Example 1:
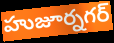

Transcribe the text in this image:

హుజూర్నగర్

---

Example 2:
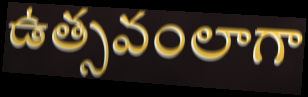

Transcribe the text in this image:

ఉత్సవంలాగా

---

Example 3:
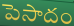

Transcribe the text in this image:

పెసాదం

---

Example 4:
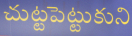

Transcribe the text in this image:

చుట్టపెట్టుకుని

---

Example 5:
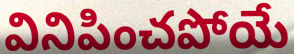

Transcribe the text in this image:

వినిపించపోయే